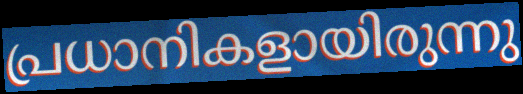
പ്രധാനികളായിരുന്നു